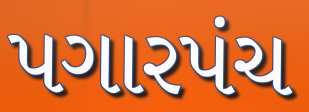
પગારપંચ